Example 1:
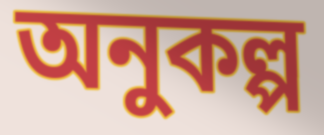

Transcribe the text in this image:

অনুকল্প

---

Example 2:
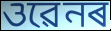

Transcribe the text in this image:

ওৱেনৰ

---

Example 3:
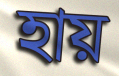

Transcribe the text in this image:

হায়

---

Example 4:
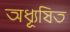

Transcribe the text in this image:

অধ্যূষিত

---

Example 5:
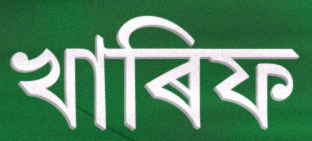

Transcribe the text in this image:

খাৰিফ